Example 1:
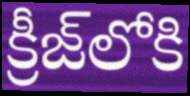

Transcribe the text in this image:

క్రీజ్‌లోకి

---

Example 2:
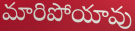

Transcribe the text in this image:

మారిపోయావు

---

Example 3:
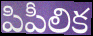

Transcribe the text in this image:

పిపీలిక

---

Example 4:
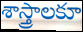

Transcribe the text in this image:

శాస్త్రాలకూ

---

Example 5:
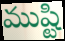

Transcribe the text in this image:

ముష్టి